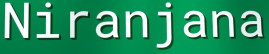
Niranjana